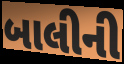
બાલીની